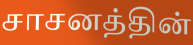
சாசனத்தின்